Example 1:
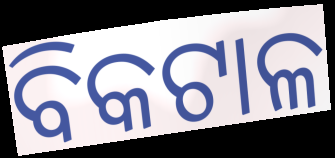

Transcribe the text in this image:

ବିକଟାଳ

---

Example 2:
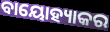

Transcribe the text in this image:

ବାୟୋହ୍ୟାକର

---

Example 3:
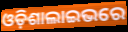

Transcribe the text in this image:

ଓଡ଼ିଶାଲାଇଭରେ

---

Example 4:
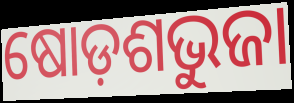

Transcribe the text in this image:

ଷୋଡ଼ଶଭୁଜା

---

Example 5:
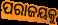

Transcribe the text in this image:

ପରାଜୟକୁ